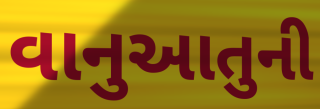
વાનુઆતુની